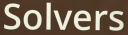
Solvers